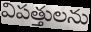
విపత్తులను